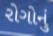
રોગોનું